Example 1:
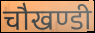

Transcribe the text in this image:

चौखण्डी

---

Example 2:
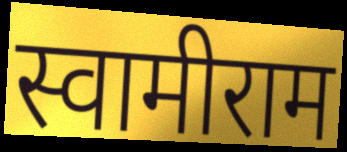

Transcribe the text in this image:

स्वामीराम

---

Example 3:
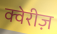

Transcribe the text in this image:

क्वेरीज़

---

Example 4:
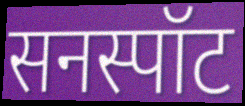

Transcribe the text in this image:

सनस्पॉट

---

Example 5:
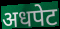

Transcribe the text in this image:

अधपेट